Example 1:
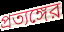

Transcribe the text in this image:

প্রত্যঙ্গের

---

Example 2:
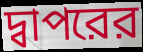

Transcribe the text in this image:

দ্বাপরের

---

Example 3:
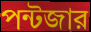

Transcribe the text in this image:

পন্টজার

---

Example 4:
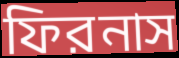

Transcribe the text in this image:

ফিরনাস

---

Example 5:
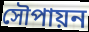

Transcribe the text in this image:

সৌপায়ন